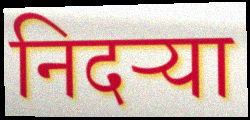
निदऱ्या